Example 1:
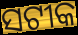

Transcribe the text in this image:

ସଟୀକ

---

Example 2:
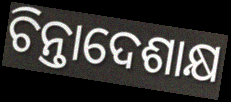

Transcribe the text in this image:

ଚିନ୍ତାଦେଶାକ୍ଷ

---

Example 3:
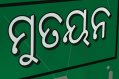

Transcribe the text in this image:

ମୁତୟନ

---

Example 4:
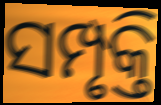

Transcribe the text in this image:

ସମ୍ପୃକ୍ତି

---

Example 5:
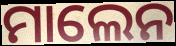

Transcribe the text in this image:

ମାଲେନ